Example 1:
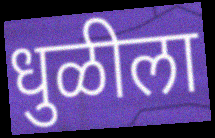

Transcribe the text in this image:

धुळीला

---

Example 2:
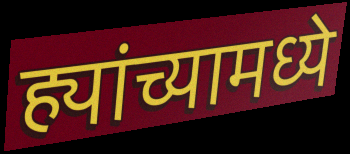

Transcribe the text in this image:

ह्यांच्यामध्ये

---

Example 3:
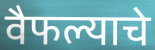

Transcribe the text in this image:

वैफल्याचे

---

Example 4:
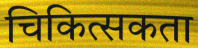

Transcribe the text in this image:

चिकित्सकता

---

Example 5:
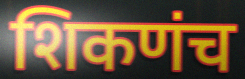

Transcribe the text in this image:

शिकणंच